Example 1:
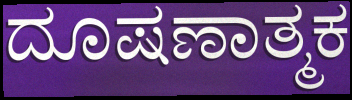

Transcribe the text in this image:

ದೂಷಣಾತ್ಮಕ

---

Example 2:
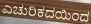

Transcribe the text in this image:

ಎಚುರಿಕದಯಿಂದ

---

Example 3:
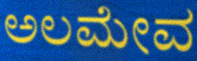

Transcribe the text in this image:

ಅಲಮೇವ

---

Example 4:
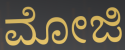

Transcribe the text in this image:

ಮೋಜಿ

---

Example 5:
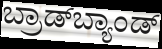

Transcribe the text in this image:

ಬ್ರಾಡ್‌ಬ್ಯಾಂಡ್